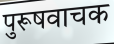
पुरूषवाचक